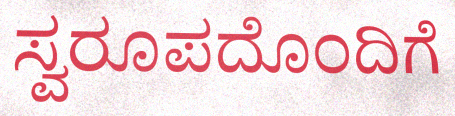
ಸ್ವರೂಪದೊಂದಿಗೆ